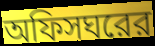
অফিসঘরের